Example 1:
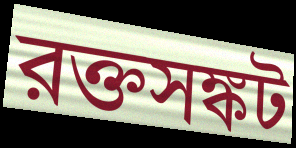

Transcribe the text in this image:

রক্তসঙ্কট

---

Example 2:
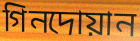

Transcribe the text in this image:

গিনদোয়ান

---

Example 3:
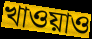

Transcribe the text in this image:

খাওয়াও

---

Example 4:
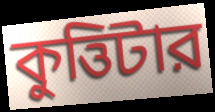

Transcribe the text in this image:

কুত্তিটার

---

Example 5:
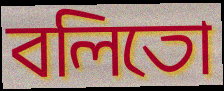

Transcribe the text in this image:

বলিতো